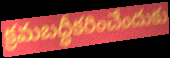
క్రమబద్ధీకరించేందుకు